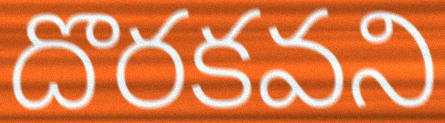
దొరకవని